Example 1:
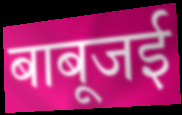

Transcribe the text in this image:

बाबूजई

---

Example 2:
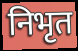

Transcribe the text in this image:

निभृत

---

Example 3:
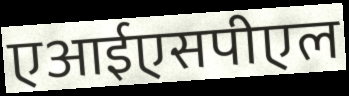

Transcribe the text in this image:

एआईएसपीएल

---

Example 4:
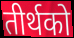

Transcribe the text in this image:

तीर्थको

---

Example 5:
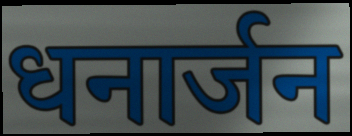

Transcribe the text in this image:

धनार्जन